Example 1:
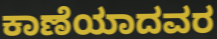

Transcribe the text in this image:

ಕಾಣೆಯಾದವರ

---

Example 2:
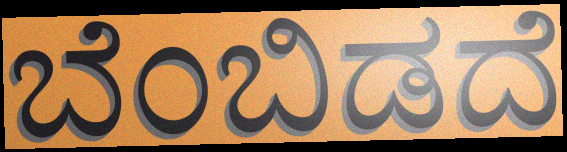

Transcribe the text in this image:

ಬೆಂಬಿಡದೆ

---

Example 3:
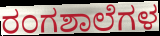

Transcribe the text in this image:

ರಂಗಶಾಲೆಗಳ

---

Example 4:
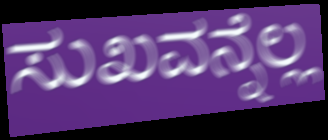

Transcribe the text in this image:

ಸುಖವನ್ನೆಲ್ಲ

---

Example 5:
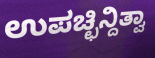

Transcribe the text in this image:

ಉಪಚ್ಛಿನ್ದಿತ್ವಾ